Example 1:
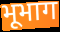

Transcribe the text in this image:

भूभाग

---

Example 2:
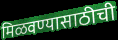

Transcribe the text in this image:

मिळवण्यासाठीची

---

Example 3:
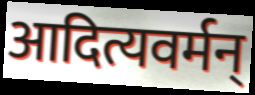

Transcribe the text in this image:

आदित्यवर्मन्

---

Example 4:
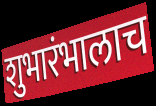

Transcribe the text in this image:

शुभारंभालाच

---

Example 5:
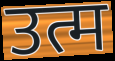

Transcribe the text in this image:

उत्म